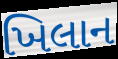
ખિલાન